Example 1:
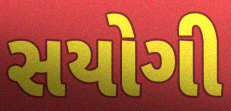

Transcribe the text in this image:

સયોગી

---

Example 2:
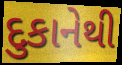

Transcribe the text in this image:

દુકાનેથી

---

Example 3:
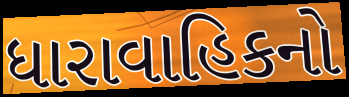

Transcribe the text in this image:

ધારાવાહિકનો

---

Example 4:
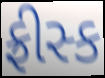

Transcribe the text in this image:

ફ્રીસ્ક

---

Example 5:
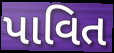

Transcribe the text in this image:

પાવિત